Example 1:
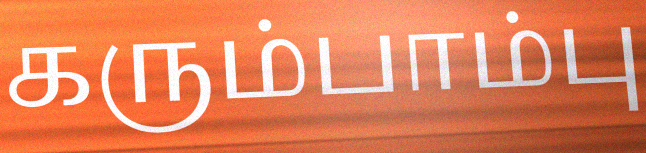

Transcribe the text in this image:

கரும்பாம்பு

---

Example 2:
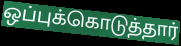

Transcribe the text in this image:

ஒப்புக்கொடுத்தார்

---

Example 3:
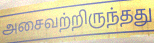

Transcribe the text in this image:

அசைவற்றிருந்தது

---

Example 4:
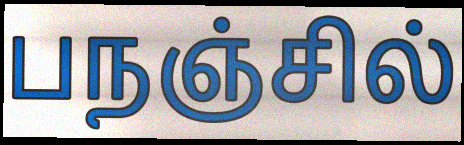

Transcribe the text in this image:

பநஞ்சில்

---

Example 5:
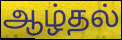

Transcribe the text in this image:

ஆழ்தல்